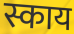
स्काय